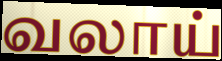
வலாய்